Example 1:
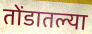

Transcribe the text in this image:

तोंडातल्या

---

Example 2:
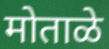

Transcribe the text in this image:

मोताळे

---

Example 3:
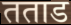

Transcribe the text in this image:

तताड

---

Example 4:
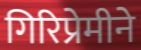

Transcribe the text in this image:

गिरिप्रेमीने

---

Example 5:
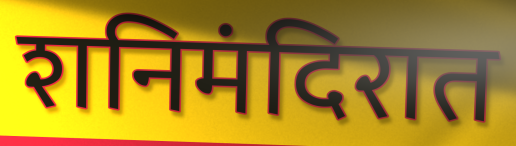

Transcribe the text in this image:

शनिमंदिरात